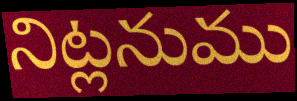
నిట్లనుము